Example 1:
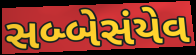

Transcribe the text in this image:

સબ્બેસંયેવ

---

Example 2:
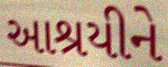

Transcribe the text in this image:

આશ્રયીને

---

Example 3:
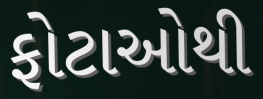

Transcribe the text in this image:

ફોટાઓથી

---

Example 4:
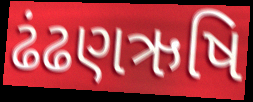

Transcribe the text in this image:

ઢંઢણઋષિ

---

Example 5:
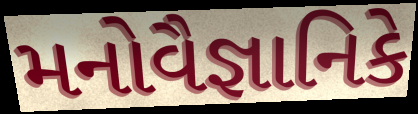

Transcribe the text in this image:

મનોવૈજ્ઞાનિકે